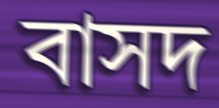
বাসদ